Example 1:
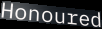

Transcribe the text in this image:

Honoured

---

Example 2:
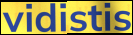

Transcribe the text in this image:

vidistis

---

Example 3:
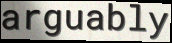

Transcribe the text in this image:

arguably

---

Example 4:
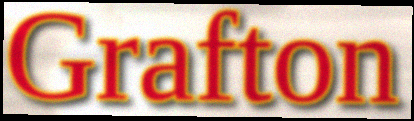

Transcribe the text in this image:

Grafton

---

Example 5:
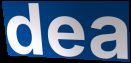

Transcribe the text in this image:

dea